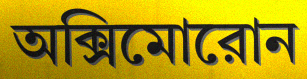
অক্সিমোরোন